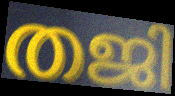
തജി